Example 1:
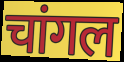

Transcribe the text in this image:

चांगल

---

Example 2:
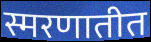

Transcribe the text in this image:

स्मरणातीत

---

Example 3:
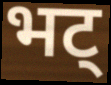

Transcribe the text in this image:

भट्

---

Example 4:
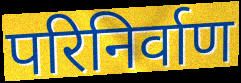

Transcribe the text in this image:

परिनिर्वाण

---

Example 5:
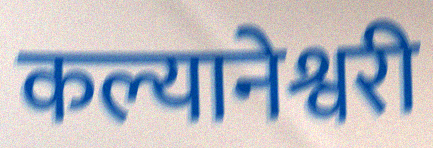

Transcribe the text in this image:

कल्यानेश्वरी